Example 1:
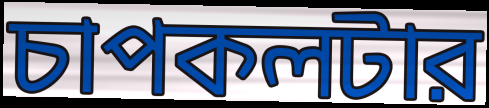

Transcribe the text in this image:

চাপকলটার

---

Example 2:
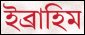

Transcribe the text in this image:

ইব্রাহিম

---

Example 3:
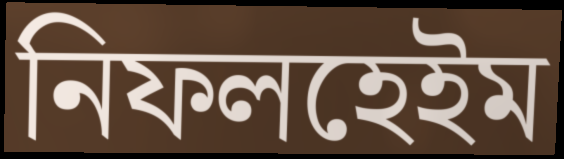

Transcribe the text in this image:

নিফলহেইম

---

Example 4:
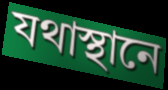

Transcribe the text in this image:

যথাস্থানে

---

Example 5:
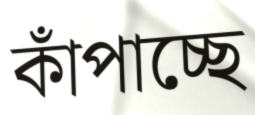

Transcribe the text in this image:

কাঁপাচ্ছে